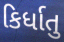
કિર્ધાતુ